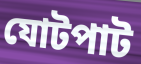
যোটপাট